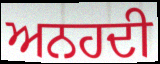
ਅਨਹਦੀ